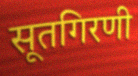
सूतगिरणी